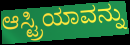
ಆಸ್ಟ್ರಿಯಾವನ್ನು